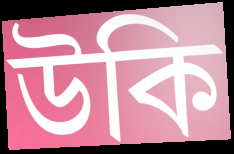
উকি